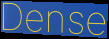
Dense